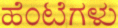
ಹೆಂಟೆಗಳು